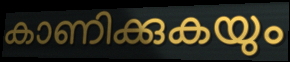
കാണിക്കുകയും